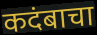
कदंबाचा